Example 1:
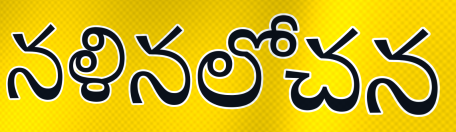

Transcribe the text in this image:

నళినలోచన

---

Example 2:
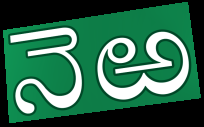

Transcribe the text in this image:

నెఱ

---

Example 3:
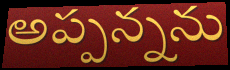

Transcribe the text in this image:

అప్పన్నను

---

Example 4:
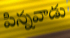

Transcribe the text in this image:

పిన్నవాడు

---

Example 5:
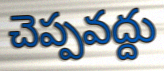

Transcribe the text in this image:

చెప్పవద్దు